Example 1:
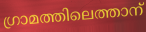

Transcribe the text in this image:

ഗ്രാമത്തിലെത്താന്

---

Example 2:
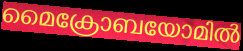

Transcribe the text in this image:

മൈക്രോബയോമിൽ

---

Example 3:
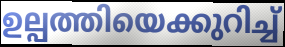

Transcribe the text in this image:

ഉല്പത്തിയെക്കുറിച്ച്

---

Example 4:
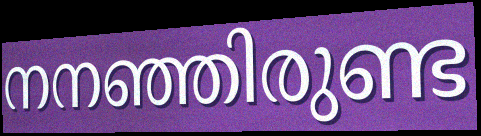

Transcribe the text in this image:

നനഞ്ഞിരുണ്ട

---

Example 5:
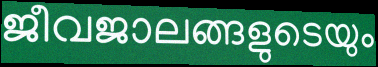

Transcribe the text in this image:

ജീവജാലങ്ങളുടെയും